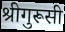
श्रीगुरूसी